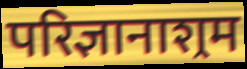
परिज्ञानाश्रम